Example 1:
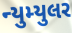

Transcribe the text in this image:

ન્યુમ્યુલર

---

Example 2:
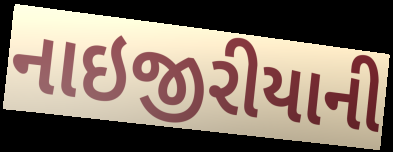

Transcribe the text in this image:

નાઇજીરીયાની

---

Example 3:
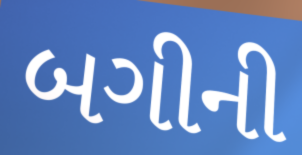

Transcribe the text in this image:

બગીની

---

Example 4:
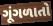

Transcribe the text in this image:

ગૂંગળાતો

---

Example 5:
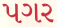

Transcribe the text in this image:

પગર